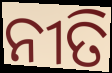
ନୀତି